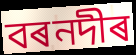
বৰনদীৰ